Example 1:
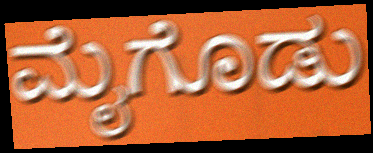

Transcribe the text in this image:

ಮೈಗೊಡು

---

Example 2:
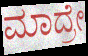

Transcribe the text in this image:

ಮಾದ್ರೇ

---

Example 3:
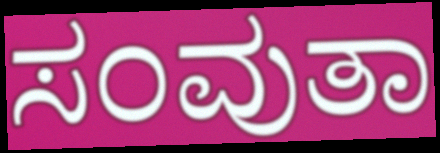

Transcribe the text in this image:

ಸಂವುತಾ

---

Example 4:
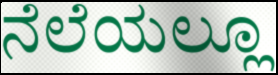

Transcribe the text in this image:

ನೆಲೆಯಲ್ಲೂ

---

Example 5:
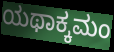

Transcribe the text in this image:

ಯಥಾಕ್ಕಮಂ